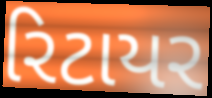
રિટાયર